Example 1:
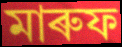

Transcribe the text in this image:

মাৰুফ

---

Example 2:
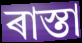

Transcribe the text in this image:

ৰাস্তা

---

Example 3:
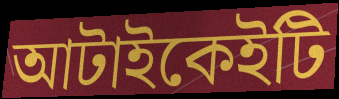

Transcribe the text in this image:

আটাইকেইটি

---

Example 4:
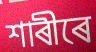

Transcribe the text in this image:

শাৰীৰে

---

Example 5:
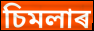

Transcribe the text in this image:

চিমলাৰ